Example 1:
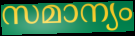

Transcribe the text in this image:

സമാന്യം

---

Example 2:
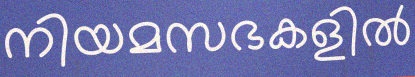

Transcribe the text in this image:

നിയമസഭകളിൽ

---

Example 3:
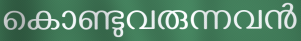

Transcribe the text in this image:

കൊണ്ടുവരുന്നവൻ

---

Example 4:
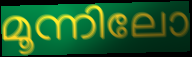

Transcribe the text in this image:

മൂന്നിലോ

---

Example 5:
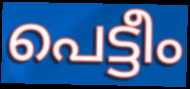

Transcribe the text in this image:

പെട്ടീം